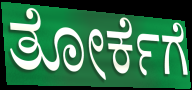
ತೋರ್ಕೆಗೆ